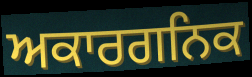
ਅਕਾਰਗਨਿਕ